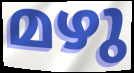
മഴു